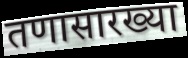
तणासारख्या